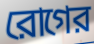
রোগের